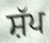
ਸ਼ੱਪ